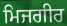
ਮਿਜਗੀਰ